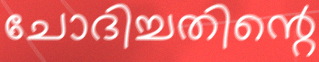
ചോദിച്ചതിന്റെ